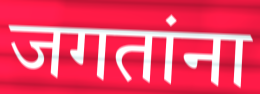
जगतांना